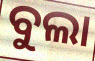
ବୁଲା